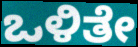
ಒಳಿತೇ